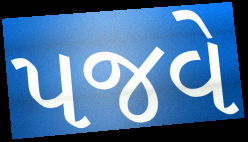
પજવે